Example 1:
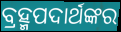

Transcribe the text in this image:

ବ୍ରହ୍ମପଦାର୍ଥଙ୍କର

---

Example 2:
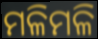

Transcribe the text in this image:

ମଳିମଳି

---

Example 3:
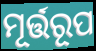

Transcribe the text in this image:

ମୂର୍ତ୍ତରୂପ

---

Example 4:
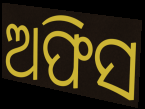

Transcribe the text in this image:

ଅଫିସ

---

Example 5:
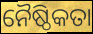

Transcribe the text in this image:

ନୈଷ୍ଠିକତା